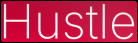
Hustle